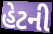
હેટની